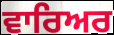
ਵਾਰਿਅਰ